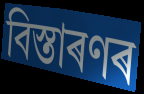
বিস্তাৰণৰ